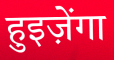
हुइज़ेंगा